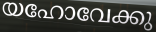
യഹോവേക്കു